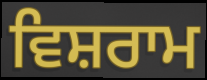
ਵਿਸ਼ਰਾਮ